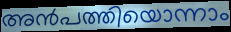
അൻപത്തിയൊന്നാം